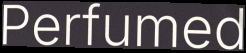
Perfumed